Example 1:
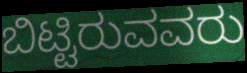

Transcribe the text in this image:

ಬಿಟ್ಟಿರುವವರು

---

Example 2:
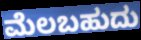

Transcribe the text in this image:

ಮೆಲಬಹುದು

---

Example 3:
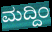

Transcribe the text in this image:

ಮದ್ದಿಂ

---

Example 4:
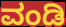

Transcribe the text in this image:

ವಂಡಿ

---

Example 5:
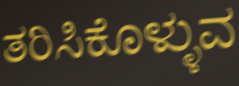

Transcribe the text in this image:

ತರಿಸಿಕೊಳ್ಳುವ